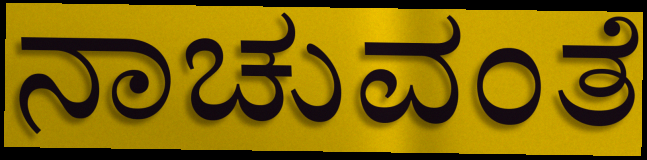
ನಾಚುವಂತೆ